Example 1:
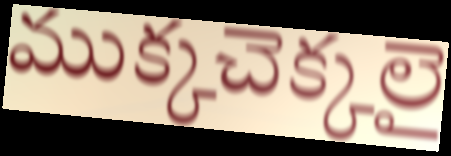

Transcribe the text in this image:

ముక్కచెక్కలై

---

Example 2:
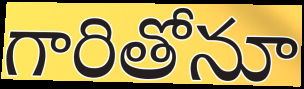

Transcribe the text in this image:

గారితోనూ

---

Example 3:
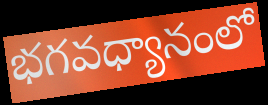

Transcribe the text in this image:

భగవధ్యానంలో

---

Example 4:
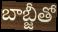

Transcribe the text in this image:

బాబ్జీతో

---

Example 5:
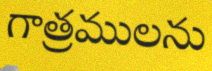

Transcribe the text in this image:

గాత్రములను